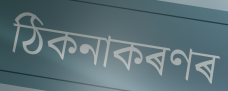
ঠিকনাকৰণৰ